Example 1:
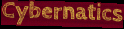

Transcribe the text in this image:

Cybernatics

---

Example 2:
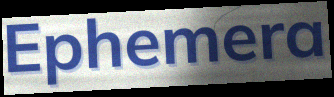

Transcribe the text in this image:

Ephemera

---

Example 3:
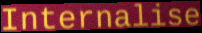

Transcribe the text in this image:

Internalise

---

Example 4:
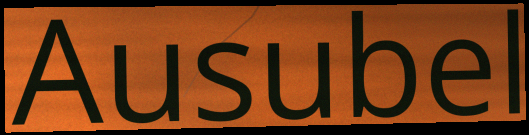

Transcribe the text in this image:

Ausubel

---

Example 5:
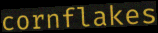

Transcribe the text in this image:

cornflakes